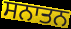
ਸਨਾਤਨ